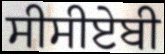
ਸੀਸੀਏਬੀ